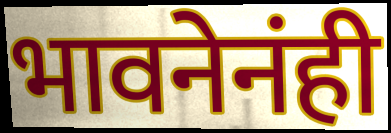
भावनेनंही